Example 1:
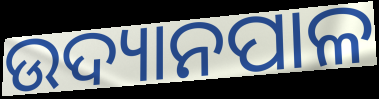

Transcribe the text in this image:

ଉଦ୍ୟାନପାଳ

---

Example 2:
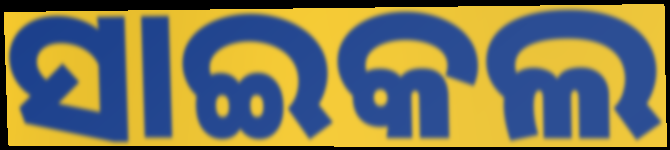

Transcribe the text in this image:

ସାଇକଲ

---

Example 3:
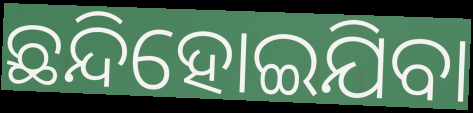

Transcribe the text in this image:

ଛନ୍ଦିହୋଇଯିବା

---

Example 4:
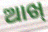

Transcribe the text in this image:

ଆଖ୍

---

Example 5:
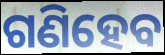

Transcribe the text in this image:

ଗଣିହେବ